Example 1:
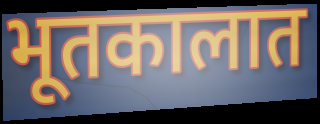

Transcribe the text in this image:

भूतकालात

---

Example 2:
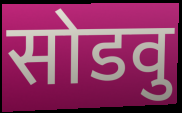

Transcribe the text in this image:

सोडवु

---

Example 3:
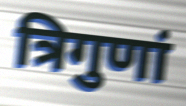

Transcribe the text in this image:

त्रिगुणां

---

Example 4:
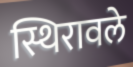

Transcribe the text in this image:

स्थिरावले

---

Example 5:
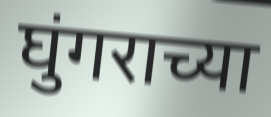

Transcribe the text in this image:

घुंगराच्या